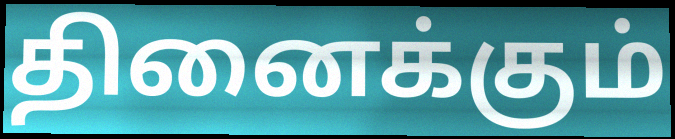
தினைக்கும்